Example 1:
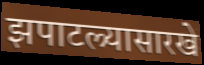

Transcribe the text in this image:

झपाटल्यासारखे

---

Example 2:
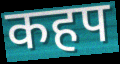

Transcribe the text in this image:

कहप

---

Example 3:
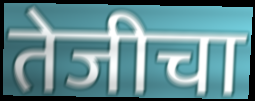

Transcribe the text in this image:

तेजीचा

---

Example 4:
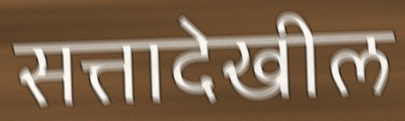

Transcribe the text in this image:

सत्तादेखील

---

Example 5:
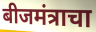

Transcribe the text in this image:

बीजमंत्राचा